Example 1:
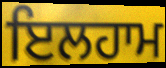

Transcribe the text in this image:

ਇਲਹਾਮ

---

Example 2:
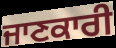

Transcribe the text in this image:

ਜਾਣਕਾਰੀ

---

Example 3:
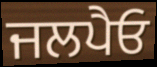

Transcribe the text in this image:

ਜਲਪੈਓ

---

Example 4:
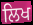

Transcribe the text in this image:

ਲਿਖ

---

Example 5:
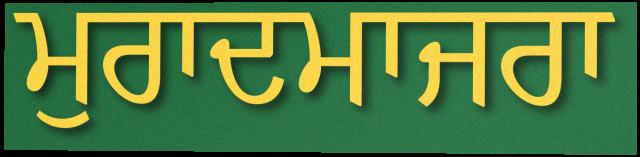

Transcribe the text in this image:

ਮੁਰਾਦਮਾਜਰਾ